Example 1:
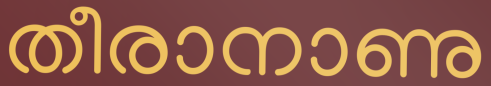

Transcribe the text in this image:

തീരാനാണു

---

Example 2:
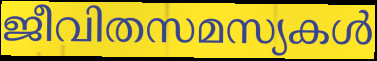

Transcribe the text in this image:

ജീവിതസമസ്യകൾ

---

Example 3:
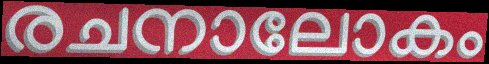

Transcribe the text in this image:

രചനാലോകം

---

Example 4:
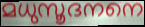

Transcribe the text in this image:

മധുസൂദനനെ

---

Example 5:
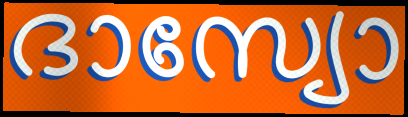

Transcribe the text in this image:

ദാസ്യോ